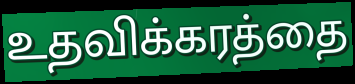
உதவிக்கரத்தை